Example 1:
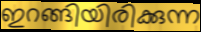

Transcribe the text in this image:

ഇറങ്ങിയിരിക്കുന്ന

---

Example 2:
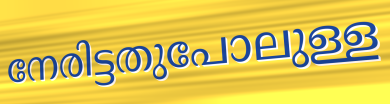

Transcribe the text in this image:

നേരിട്ടതുപോലുള്ള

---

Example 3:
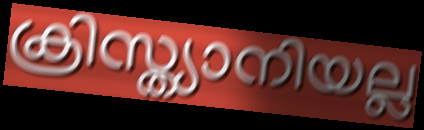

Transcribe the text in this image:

ക്രിസ്ത്യാനിയല്ല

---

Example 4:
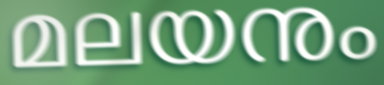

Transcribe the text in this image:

മലയനും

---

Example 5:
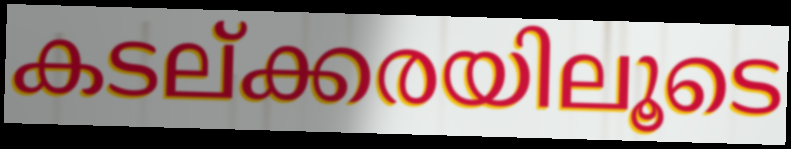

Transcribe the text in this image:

കടല്ക്കരയിലൂടെ